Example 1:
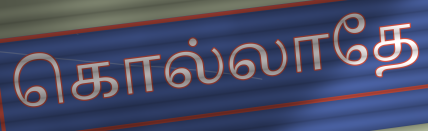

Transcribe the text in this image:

கொல்லாதே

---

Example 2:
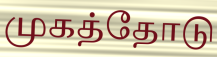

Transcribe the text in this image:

முகத்தோடு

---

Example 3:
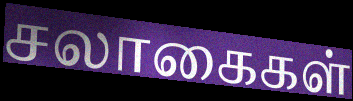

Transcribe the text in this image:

சலாகைகள்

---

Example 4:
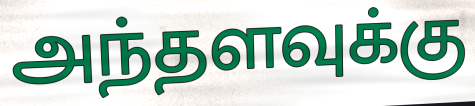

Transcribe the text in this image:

அந்தளவுக்கு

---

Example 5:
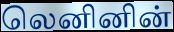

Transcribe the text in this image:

லெனினின்